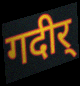
गदीर्